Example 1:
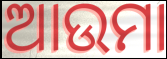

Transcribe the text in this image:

ଆଉମା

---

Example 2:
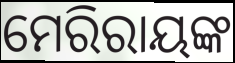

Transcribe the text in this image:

ମେରିରାୟଙ୍କ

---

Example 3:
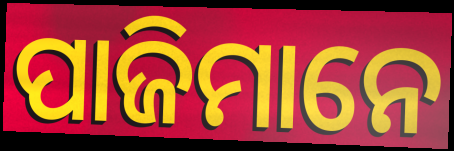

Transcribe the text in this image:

ପାଜିମାନେ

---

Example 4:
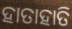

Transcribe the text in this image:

ହାତାହାତି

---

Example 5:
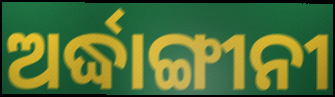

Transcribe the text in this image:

ଅର୍ଦ୍ଧାଙ୍ଗୀନୀ